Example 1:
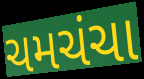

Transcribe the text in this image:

ચમચંચા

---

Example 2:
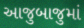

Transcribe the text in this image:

આજુબાજુમાં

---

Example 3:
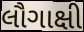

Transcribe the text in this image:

લૌગાક્ષી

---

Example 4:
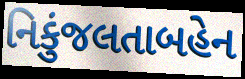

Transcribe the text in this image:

નિકુંજલતાબહેન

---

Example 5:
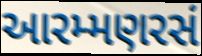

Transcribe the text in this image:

આરમ્મણરસં